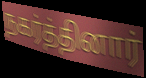
நகர்த்தினார்